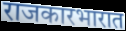
राजकारभारात